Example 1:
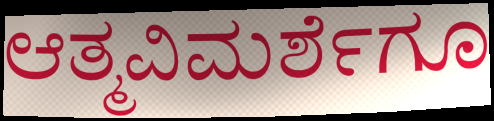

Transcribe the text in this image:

ಆತ್ಮವಿಮರ್ಶೆಗೂ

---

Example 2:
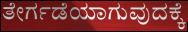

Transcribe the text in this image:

ತೇರ್ಗಡೆಯಾಗುವುದಕ್ಕೆ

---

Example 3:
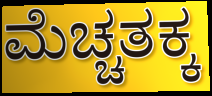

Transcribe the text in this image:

ಮೆಚ್ಚತಕ್ಕ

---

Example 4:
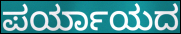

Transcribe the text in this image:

ಪರ್ಯಾಯದ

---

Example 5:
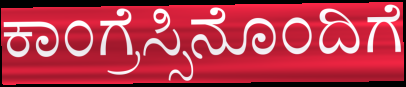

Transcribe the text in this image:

ಕಾಂಗ್ರೆಸ್ಸಿನೊಂದಿಗೆ